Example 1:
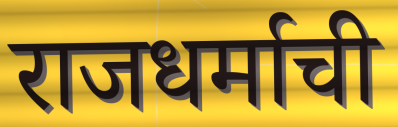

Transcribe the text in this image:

राजधर्माची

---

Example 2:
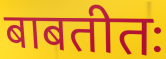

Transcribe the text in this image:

बाबतीतः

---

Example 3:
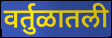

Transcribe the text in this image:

वर्तुळातली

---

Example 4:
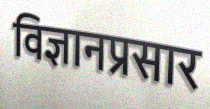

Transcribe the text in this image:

विज्ञानप्रसार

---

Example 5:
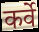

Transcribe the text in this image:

कर्वे